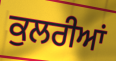
ਕੁਲਰੀਆਂ